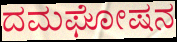
ದಮಘೋಷನ